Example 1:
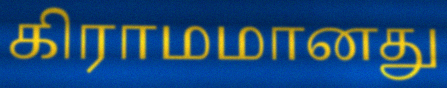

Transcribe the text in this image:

கிராமமானது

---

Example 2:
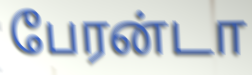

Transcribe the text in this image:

பேரன்டா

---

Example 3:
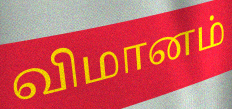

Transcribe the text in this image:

விமானம்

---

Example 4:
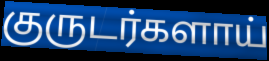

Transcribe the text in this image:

குருடர்களாய்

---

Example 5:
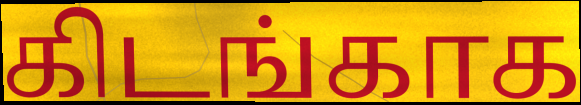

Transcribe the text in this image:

கிடங்காக